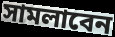
সামলাবেন